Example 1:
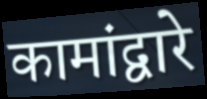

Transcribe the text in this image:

कामांद्वारे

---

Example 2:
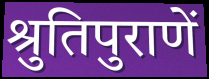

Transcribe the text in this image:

श्रुतिपुराणें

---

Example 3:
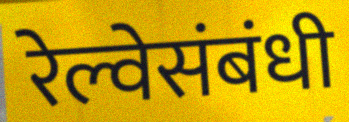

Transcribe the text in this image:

रेल्वेसंबंधी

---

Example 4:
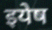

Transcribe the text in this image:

इयेष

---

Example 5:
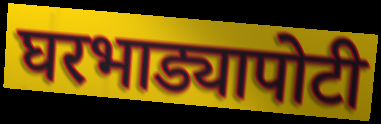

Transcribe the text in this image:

घरभाड्यापोटी